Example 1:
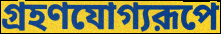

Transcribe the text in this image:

গ্রহণযোগ্যরূপে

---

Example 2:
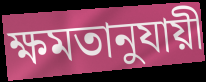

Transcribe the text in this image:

ক্ষমতানুযায়ী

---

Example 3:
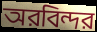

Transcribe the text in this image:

অরবিন্দর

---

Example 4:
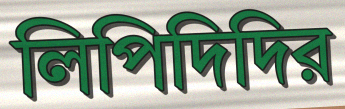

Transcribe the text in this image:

লিপিদিদির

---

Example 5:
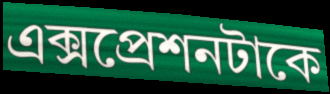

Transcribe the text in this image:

এক্সপ্রেশনটাকে